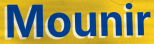
Mounir